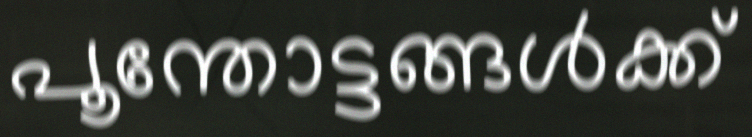
പൂന്തോട്ടങ്ങൾക്ക്